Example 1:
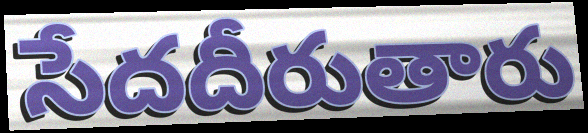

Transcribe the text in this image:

సేదదీరుతారు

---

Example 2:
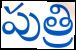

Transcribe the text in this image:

పుత్రి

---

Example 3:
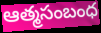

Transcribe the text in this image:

ఆత్మసంబంధ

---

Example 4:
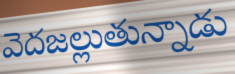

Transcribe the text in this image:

వెదజల్లుతున్నాడు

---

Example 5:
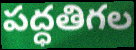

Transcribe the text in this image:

పద్ధతిగల